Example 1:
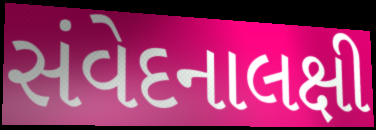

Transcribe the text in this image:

સંવેદનાલક્ષી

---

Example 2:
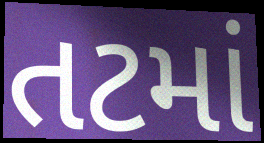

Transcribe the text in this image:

તટમાં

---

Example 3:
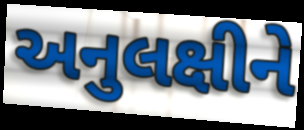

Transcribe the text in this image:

અનુલક્ષીને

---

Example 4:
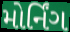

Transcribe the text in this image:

મોર્નિંગ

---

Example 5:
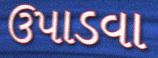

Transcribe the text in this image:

ઉપાડવા